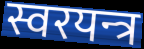
स्वरयन्त्र